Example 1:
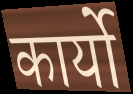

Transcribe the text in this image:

कार्यो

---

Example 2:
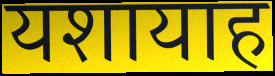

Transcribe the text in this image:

यशायाह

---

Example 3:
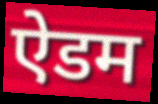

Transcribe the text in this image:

ऐडम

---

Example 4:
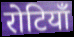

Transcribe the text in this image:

रोटियाँ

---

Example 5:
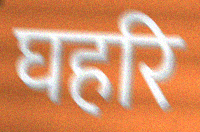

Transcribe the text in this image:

घहरि